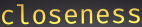
closeness